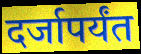
दर्जापर्यंत